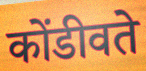
कोंडीवते